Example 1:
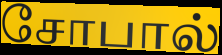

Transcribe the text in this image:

சோபால்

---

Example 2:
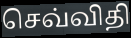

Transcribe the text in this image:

செவ்விதி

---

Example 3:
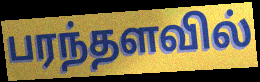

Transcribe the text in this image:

பரந்தளவில்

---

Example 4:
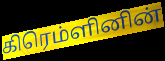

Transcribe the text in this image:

கிரெம்ளினின்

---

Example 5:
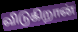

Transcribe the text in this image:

விடுகிறான்